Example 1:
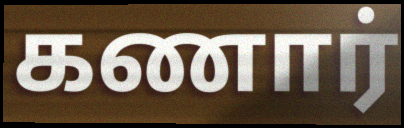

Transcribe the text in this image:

கணார்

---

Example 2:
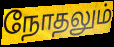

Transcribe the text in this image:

நோதலும்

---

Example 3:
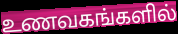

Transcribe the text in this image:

உணவகங்களில்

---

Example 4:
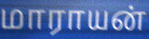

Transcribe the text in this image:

மாராயன்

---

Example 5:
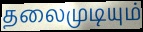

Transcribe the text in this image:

தலைமுடியும்